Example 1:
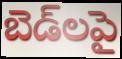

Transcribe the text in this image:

బెడ్‌లపై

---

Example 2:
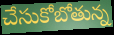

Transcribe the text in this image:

చేసుకోబోతున్న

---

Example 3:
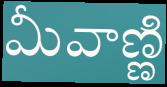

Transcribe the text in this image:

మీవాణ్ణి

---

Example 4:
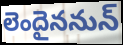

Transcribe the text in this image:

లెందైననున్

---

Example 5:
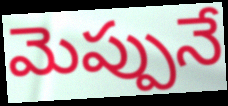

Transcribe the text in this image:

మెప్పునే